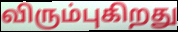
விரும்புகிறது